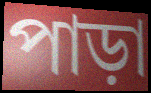
পাড়া